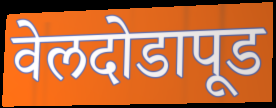
वेलदोडापूड